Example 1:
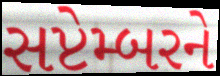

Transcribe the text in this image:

સપ્ટેમ્બરને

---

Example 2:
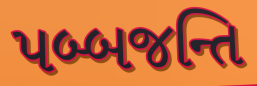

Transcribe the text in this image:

પબ્બજન્તિ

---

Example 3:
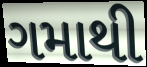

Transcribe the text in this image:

ગમાથી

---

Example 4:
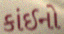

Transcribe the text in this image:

કાંઈનો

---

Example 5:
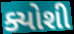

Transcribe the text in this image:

ક્યોશી